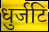
धुर्जटि